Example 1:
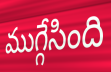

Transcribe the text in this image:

ముగ్గేసింది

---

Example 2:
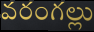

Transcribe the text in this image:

వరంగల్లు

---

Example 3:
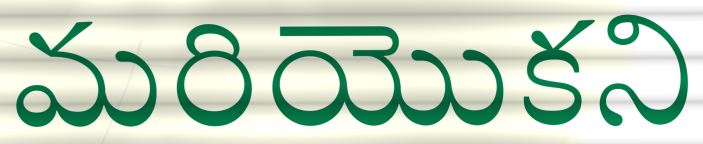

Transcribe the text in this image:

మరియొకని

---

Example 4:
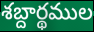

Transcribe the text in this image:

శబ్దార్థముల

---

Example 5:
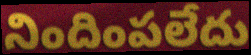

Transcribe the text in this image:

నిందింపలేదు